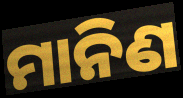
ମାନିଣ